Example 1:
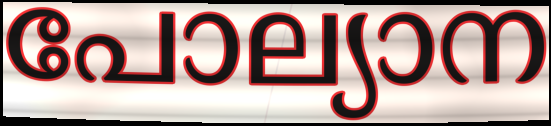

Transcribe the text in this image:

പോല്യാന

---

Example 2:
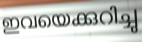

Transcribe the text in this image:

ഇവയെക്കുറിച്ചു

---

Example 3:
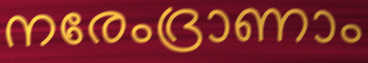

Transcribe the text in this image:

നരേംദ്രാണാം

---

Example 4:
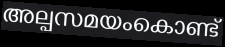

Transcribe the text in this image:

അല്പസമയംകൊണ്ട്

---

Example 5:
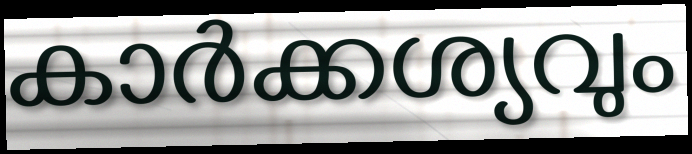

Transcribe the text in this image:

കാർക്കശ്യവും